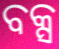
ବକ୍ସ